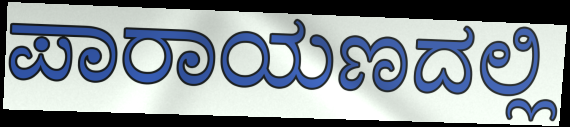
ಪಾರಾಯಣದಲ್ಲಿ